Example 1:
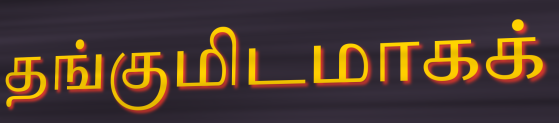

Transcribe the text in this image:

தங்குமிடமாகக்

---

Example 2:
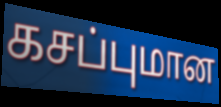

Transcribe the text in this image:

கசப்புமான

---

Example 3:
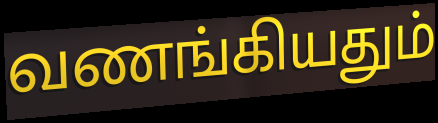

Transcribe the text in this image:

வணங்கியதும்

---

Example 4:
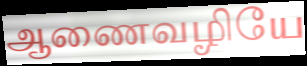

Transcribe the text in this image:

ஆணைவழியே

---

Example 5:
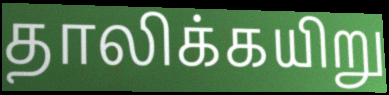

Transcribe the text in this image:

தாலிக்கயிறு